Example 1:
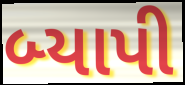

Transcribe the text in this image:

બ્યાપી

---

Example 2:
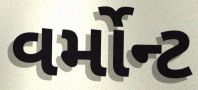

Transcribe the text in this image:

વર્મોન્ટ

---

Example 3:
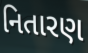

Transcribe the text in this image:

નિતારણ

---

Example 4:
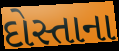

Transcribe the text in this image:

દોસ્તાના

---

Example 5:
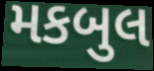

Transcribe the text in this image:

મકબુલ